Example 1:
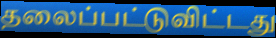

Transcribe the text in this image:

தலைப்பட்டுவிட்டது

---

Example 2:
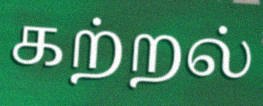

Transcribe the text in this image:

கற்றல்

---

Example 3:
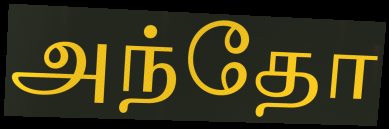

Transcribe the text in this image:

அந்தோ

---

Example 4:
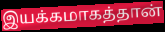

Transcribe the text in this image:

இயக்கமாகத்தான்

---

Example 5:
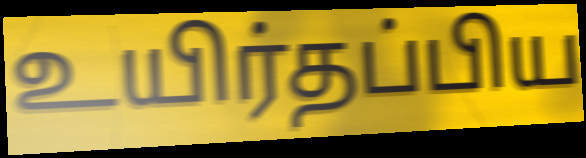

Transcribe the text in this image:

உயிர்தப்பிய